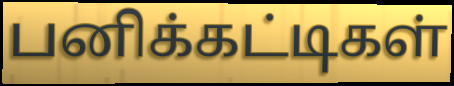
பனிக்கட்டிகள்